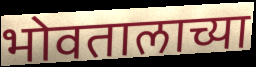
भोवतालाच्या